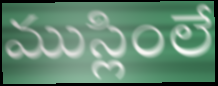
ముస్లింలే